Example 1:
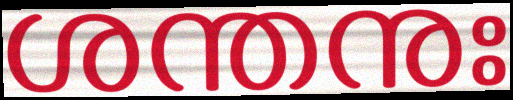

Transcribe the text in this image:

ശന്തനുഃ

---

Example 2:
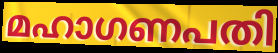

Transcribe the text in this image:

മഹാഗണപതി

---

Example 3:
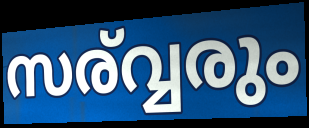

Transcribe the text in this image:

സര്വ്വരും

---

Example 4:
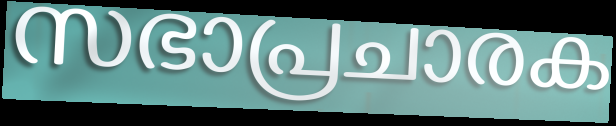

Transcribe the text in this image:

സഭാപ്രചാരക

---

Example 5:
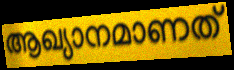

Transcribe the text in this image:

ആഖ്യാനമാണത്